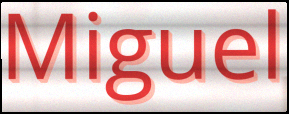
Miguel